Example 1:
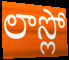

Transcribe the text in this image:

లాస్లో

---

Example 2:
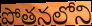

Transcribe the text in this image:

పోతనలోని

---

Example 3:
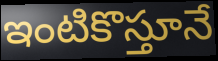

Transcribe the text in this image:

ఇంటికొస్తూనే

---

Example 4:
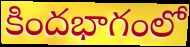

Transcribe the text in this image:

కిందభాగంలో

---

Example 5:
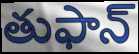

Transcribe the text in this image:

తుఫాన్